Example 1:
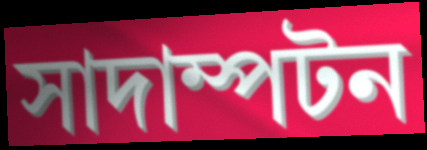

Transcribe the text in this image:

সাদাম্পটন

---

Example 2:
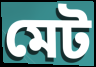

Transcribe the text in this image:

মেট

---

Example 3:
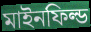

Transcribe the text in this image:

মাইনফিল্ড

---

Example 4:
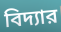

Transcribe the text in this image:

বিদ্যার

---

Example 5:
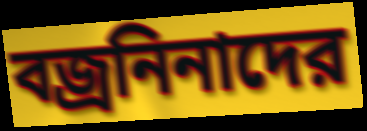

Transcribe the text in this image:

বজ্রনিনাদের